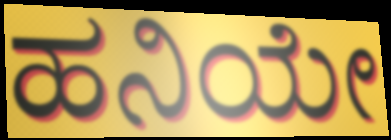
ಹನಿಯೇ